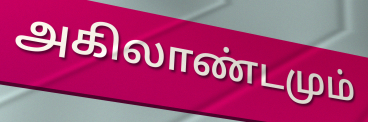
அகிலாண்டமும்